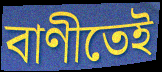
বাণীতেই